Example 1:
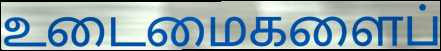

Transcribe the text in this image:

உடைமைகளைப்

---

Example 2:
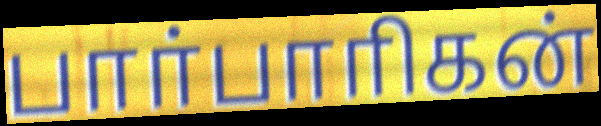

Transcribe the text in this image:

பார்பாரிகன்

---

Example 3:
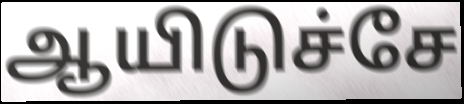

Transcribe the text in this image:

ஆயிடுச்சே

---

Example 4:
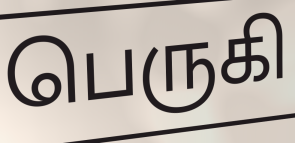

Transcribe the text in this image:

பெருகி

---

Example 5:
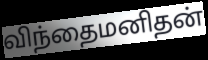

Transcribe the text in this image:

விந்தைமனிதன்